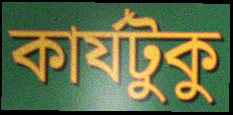
কার্যটুকু